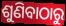
ଶୁଣିବାଠାରୁ